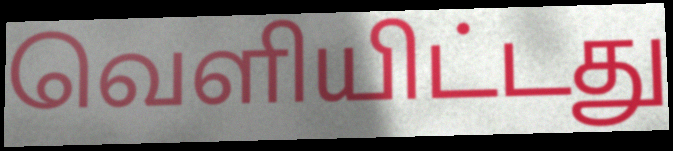
வெளியிட்டது